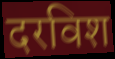
दरविश